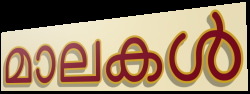
മാലകൾ